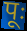
पूः